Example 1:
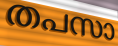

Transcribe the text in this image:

തപസാ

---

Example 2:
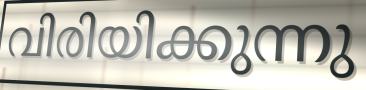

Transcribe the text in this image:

വിരിയിക്കുന്നു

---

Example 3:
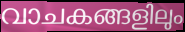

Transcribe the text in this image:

വാചകങ്ങളിലും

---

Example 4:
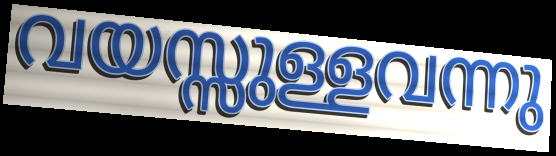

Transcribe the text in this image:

വയസ്സുള്ളവന്നു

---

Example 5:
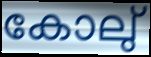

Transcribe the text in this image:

കോലു്